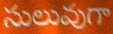
సులువుగా